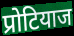
प्रोटियाज